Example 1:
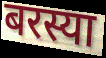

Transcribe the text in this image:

बरस्या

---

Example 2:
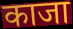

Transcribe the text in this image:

काजा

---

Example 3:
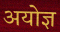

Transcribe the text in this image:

अयोज्ञ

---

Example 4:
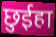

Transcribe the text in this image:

छुईहा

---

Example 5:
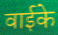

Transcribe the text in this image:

वाईके